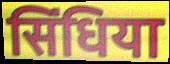
सिंधिया